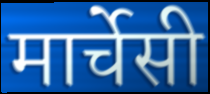
मार्चेसी